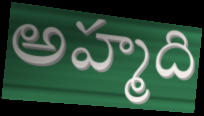
అహ్మది